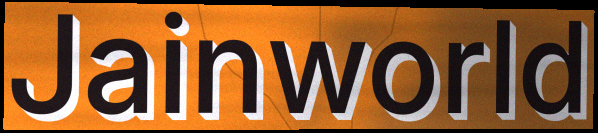
Jainworld